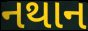
નથાન